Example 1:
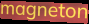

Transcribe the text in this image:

magneton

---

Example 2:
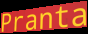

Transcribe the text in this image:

Pranta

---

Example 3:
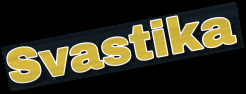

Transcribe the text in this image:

Svastika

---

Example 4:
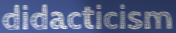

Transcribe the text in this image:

didacticism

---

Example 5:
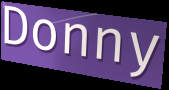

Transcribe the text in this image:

Donny